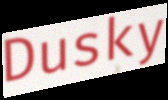
Dusky